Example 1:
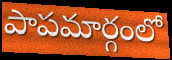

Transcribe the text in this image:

పాపమార్గంలో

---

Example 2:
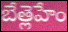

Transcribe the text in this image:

బేత్లెహేం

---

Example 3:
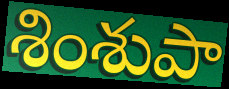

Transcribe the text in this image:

శింశుపా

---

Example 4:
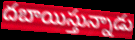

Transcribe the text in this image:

దబాయిస్తున్నాడు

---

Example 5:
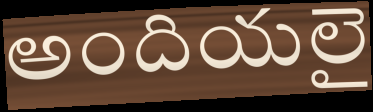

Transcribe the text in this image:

అందియలై